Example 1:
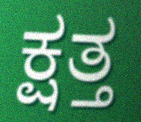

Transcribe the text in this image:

ಕ್ಷತ್ತ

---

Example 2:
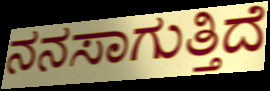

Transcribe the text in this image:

ನನಸಾಗುತ್ತಿದೆ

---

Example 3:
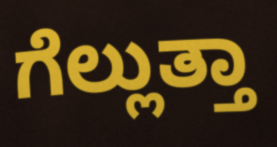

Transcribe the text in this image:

ಗೆಲ್ಲುತ್ತಾ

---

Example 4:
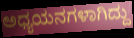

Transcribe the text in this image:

ಅಧ್ಯಯನಗಳಾಗಿದ್ದು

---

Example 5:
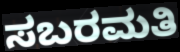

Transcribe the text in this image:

ಸಬರಮತಿ